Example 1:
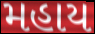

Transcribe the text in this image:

મહાય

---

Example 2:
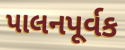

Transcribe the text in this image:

પાલનપૂર્વક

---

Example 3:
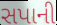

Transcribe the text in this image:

સપાની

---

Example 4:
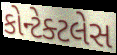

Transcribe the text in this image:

કોન્ટેક્ટલેસ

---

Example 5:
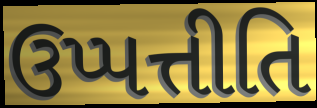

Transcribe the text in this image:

ઉપ્પત્તીતિ